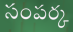
సంపర్క